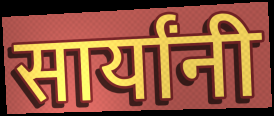
सार्यांनी